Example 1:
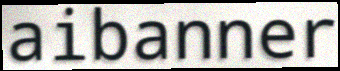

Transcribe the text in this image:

aibanner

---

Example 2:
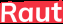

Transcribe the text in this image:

Raut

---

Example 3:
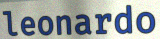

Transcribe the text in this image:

leonardo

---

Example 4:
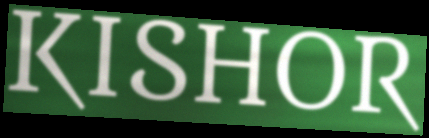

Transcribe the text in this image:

KISHOR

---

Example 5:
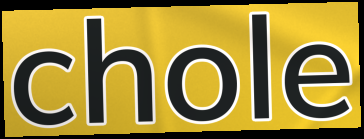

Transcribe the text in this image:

chole